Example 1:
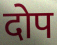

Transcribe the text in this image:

दोप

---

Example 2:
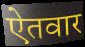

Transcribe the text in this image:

ऐतवार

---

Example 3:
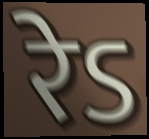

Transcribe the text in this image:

रेऽ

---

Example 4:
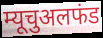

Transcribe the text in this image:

म्यूचुअलफंड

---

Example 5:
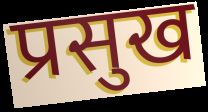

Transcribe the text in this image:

प्रसुख